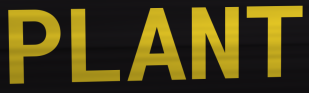
PLANT